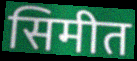
सिमीत